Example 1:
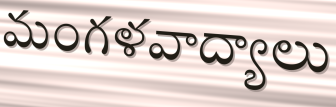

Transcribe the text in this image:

మంగళవాద్యాలు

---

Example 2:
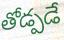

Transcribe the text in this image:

తోడ్పడే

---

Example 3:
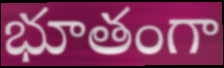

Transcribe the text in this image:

భూతంగా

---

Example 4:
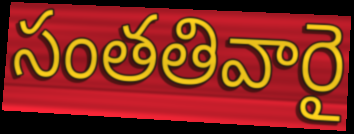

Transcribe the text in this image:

సంతతివారై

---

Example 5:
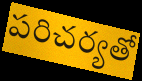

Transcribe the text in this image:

పరిచర్యతో